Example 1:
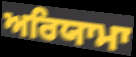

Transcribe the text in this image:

ਅਰਿਯਾਮਾ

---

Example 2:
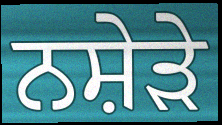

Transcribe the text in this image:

ਨਸ਼ੇੜੇ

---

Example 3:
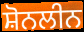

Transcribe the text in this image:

ਸ਼ੋਨਲੀਨ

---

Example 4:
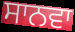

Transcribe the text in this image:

ਸਾਨਵਾ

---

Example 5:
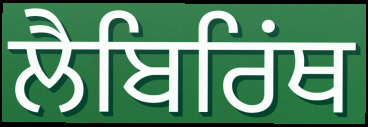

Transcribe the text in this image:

ਲੈਬਿਰਿਂਥ